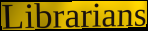
Librarians